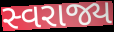
સ્વરાજ્ય